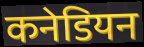
कनेडियन